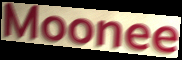
Moonee